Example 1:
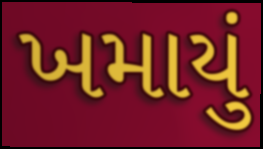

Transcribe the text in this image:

ખમાયું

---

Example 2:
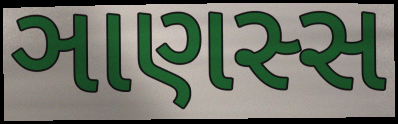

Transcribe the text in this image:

ઞાણસ્સ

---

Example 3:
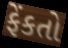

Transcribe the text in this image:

ફેંકતો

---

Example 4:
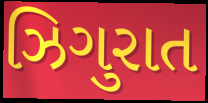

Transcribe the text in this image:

ઝિગુરાત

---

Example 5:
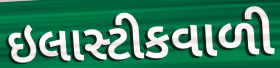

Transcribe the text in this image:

ઇલાસ્ટીકવાળી